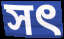
সৎ